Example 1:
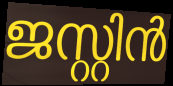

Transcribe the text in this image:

ജസ്റ്റിൻ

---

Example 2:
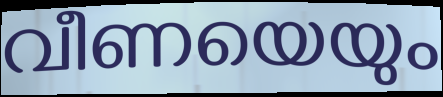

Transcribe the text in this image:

വീണയെയും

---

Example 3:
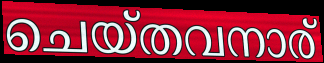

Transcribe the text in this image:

ചെയ്തവനാര്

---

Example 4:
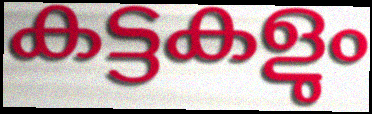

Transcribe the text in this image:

കട്ടകളും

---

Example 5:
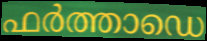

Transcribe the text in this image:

ഫർത്താഡെ